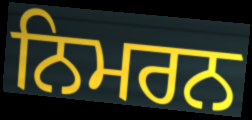
ਨਿਮਰਨ